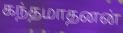
கந்தமாதனன்